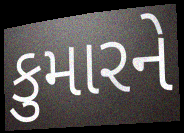
કુમારને